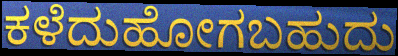
ಕಳೆದುಹೋಗಬಹುದು